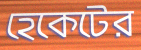
হেকেটের